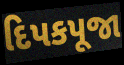
દિપકપૂજા